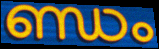
ണ്ഡം